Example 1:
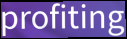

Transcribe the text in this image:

profiting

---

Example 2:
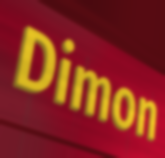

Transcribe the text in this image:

Dimon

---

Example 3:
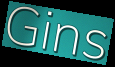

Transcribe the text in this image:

Gins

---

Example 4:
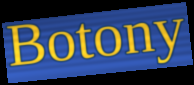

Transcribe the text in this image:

Botony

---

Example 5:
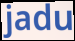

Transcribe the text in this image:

jadu